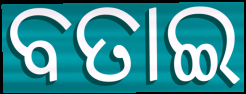
ବତାଇ